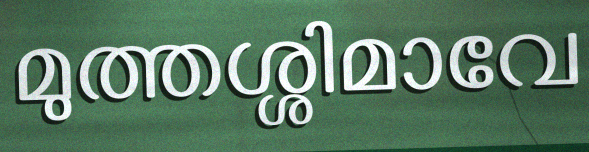
മുത്തശ്ശിമാവേ